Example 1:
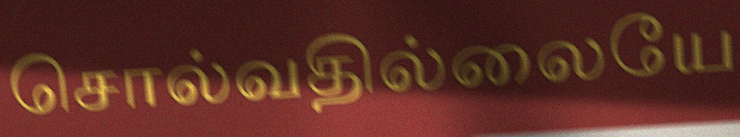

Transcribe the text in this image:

சொல்வதில்லையே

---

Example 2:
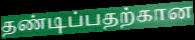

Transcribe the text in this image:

தண்டிப்பதற்கான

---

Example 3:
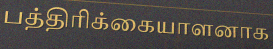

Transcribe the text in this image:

பத்திரிக்கையாளனாக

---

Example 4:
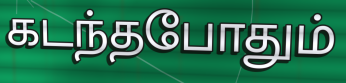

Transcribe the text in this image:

கடந்தபோதும்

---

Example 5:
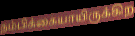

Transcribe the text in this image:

நம்பிக்கையாயிருக்கிற